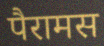
पैरामस